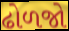
ઢોળજો